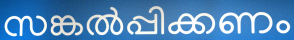
സങ്കൽപ്പിക്കണം